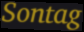
Sontag